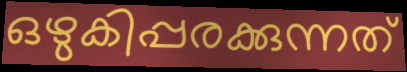
ഒഴുകിപ്പരക്കുന്നത്